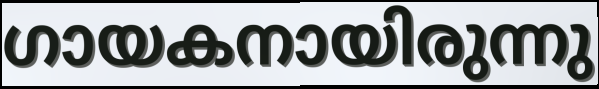
ഗായകനായിരുന്നു